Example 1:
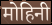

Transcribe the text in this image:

मोहिनी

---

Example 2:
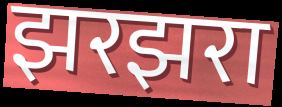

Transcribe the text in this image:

झरझरा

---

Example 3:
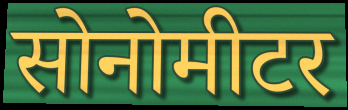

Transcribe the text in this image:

सोनोमीटर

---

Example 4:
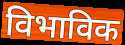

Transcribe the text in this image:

विभाविक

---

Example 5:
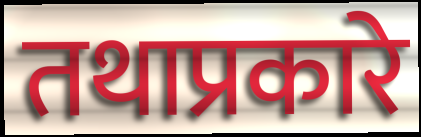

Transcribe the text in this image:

तथाप्रकारे